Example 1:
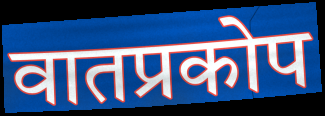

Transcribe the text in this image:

वातप्रकोप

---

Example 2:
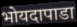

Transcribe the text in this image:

भोयदापाडा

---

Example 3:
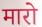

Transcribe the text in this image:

मारो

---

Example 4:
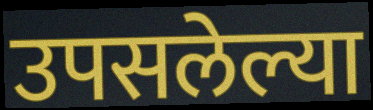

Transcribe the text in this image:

उपसलेल्या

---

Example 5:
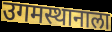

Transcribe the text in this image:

उगमस्थानाला